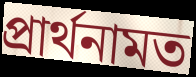
প্রার্থনামত